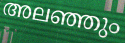
അലഞ്ഞും